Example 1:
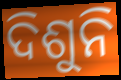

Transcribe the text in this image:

ଦିଶୁନି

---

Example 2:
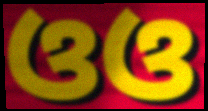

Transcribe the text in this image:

ଓଓ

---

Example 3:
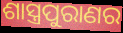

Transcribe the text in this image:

ଶାସ୍ତ୍ରପୁରାଣର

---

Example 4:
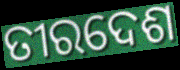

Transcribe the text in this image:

ତୀରଦେଶ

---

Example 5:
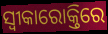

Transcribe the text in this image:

ସ୍ଵୀକାରୋକ୍ତିରେ